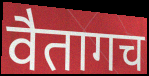
वैतागच